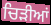
ਚਿੜੀਆਂ